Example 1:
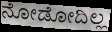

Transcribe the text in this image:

ನೋಡೋದಿಲ್ಲ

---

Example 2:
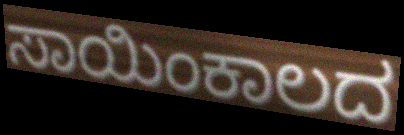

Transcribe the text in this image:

ಸಾಯಿಂಕಾಲದ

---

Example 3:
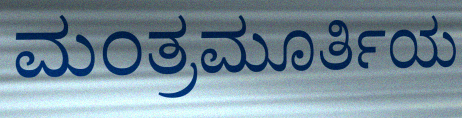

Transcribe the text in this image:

ಮಂತ್ರಮೂರ್ತಿಯ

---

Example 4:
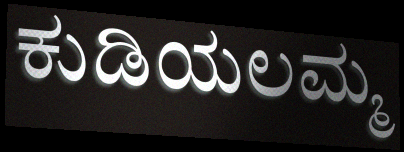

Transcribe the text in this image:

ಕುಡಿಯಲಮ್ಮ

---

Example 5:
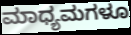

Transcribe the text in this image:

ಮಾಧ್ಯಮಗಳೂ